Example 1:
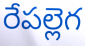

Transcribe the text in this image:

రేపల్లెగ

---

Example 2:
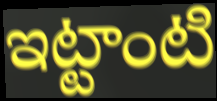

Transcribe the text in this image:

ఇట్టాంటి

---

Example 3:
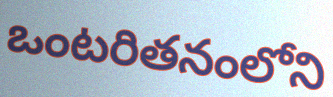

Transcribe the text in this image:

ఒంటరితనంలోని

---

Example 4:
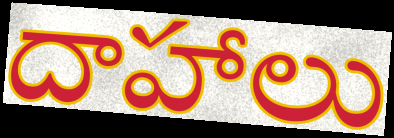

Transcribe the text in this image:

దాహాలు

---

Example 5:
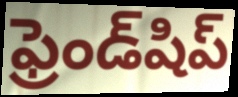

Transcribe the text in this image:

ఫ్రెండ్‌షిప్